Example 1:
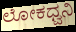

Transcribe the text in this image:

ಲೋಕಧ್ವನಿ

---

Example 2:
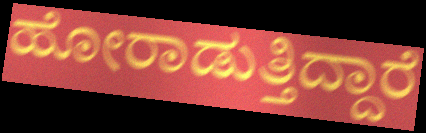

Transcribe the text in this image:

ಹೋರಾಡುತ್ತಿದ್ದಾರೆ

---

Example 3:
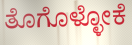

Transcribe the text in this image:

ತೊಗೊಳ್ಳೋಕೆ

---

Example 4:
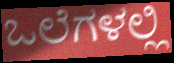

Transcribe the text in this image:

ಒಲೆಗಳಲ್ಲಿ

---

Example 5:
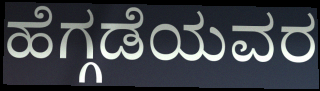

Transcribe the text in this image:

ಹೆಗ್ಗಡೆಯವರ